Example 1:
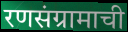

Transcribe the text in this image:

रणसंग्रामाची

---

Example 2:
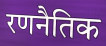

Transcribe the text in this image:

रणनैतिक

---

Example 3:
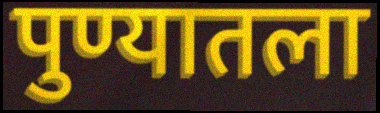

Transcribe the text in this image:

पुण्यातला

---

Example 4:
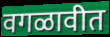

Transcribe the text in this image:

वगळावीत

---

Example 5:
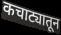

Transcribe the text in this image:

कचाट्यातून